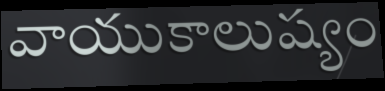
వాయుకాలుష్యం